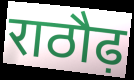
राठौढ़